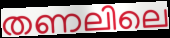
തണലിലെ